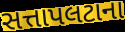
સત્તાપલટાના